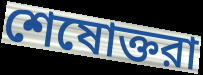
শেষোক্তরা